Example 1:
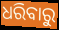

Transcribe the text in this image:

ଧରିବାରୁ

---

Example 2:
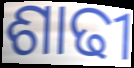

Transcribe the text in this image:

ଶାଢୀ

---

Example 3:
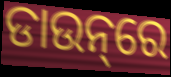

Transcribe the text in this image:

ଡାଉନ୍‌ରେ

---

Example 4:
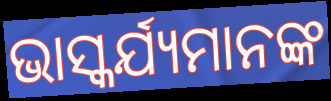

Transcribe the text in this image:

ଭାସ୍କର୍ଯ୍ୟମାନଙ୍କ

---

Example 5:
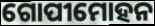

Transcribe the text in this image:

ଗୋପୀମୋହନ